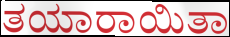
ತಯಾರಾಯಿತಾ